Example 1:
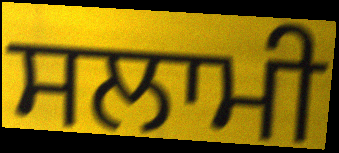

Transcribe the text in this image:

ਸਲਾਮੀ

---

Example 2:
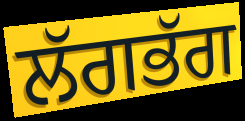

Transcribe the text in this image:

ਲੱਗਭੱਗ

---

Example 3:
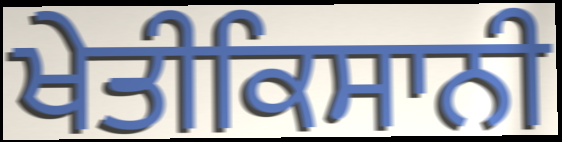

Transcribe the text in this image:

ਖੇਤੀਕਿਸਾਨੀ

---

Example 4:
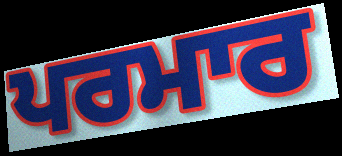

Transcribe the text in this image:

ਪਰਮਾਰ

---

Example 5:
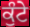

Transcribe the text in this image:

ਕੁੰਟੇ